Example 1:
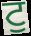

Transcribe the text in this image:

ਟੁ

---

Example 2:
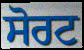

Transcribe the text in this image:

ਸੋਰਟ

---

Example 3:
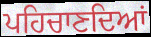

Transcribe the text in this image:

ਪਹਿਚਾਣਦਿਆਂ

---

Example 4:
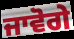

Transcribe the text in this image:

ਜਾਵੋਗੇ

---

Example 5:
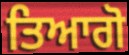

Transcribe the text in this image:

ਤਿਆਗੋ